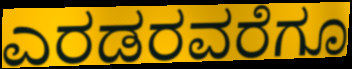
ಎರಡರವರೆಗೂ